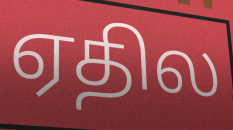
ஏதில